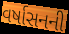
વર્ષાસનની